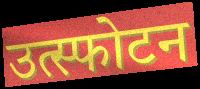
उत्स्फोटन